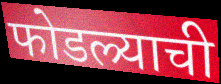
फोडल्याची